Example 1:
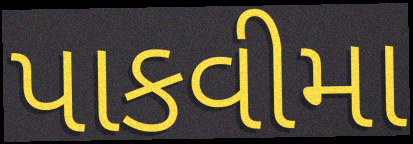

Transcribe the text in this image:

પાકવીમા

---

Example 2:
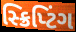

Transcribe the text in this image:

સ્ક્રિપ્ટિંગ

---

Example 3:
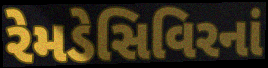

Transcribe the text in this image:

રેમડેસિવિરનાં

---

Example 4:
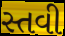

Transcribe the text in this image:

સ્તવી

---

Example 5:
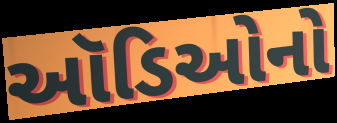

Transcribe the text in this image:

ઑડિઓનો